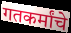
गतकर्मांचे